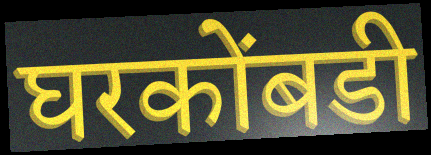
घरकोंबडी